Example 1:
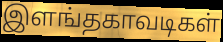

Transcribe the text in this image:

இளங்தகாவடிகள்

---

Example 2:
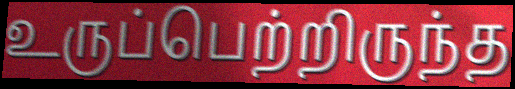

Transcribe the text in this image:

உருப்பெற்றிருந்த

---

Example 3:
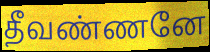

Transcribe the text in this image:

தீவண்ணனே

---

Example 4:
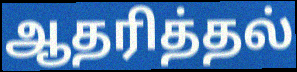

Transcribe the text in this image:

ஆதரித்தல்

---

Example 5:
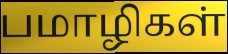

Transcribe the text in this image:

பமாழிகள்